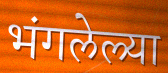
भंगलेल्या